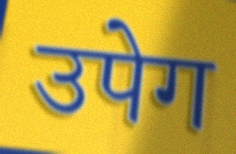
उपेग